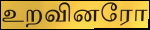
உறவினரோ